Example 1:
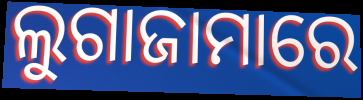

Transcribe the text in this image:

ଲୁଗାଜାମାରେ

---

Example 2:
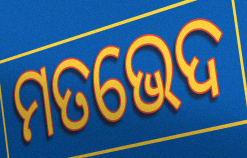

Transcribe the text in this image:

ମତଭେଦ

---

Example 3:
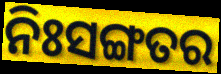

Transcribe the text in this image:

ନିଃସଙ୍ଗତର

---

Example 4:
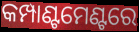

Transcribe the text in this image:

କମ୍ପାଣ୍ଟମେଣ୍ଟରେ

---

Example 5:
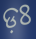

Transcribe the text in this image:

ଡ଼ଃ